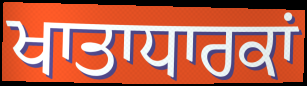
ਖਾਤਾਧਾਰਕਾਂ